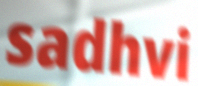
sadhvi